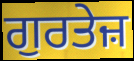
ਗੁਰਤੇਜ਼